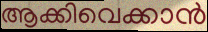
ആക്കിവെക്കാൻ